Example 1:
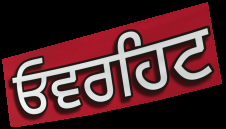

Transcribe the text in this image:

ਓਵਰਹਿਟ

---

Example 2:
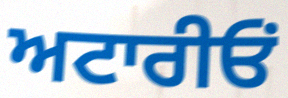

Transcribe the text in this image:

ਅਟਾਰੀਓਂ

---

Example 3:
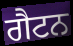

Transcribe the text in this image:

ਗੈਟਨ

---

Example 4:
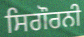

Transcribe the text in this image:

ਸਿਗੌਰਨੀ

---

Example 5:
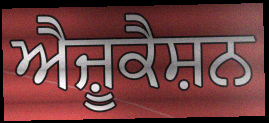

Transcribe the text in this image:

ਐਜ਼ੂਕੈਸ਼ਨ